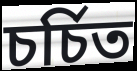
চৰ্চিত